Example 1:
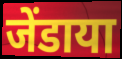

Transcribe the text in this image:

जेंडाया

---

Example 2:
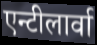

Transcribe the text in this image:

एन्टीलार्वा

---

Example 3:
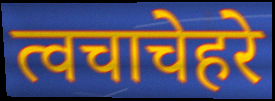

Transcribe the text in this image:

त्वचाचेहरे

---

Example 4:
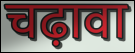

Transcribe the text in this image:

चढ़ावा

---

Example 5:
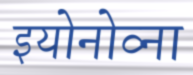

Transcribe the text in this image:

इयोनोव्ना